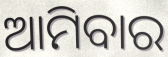
ଆମିବାର